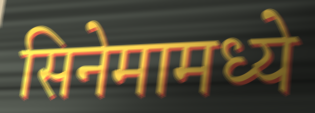
सिनेमामध्ये